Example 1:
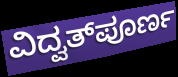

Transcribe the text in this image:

ವಿದ್ವತ್‌ಪೂರ್ಣ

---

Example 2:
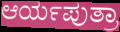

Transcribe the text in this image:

ಆರ್ಯಪುತ್ರಾ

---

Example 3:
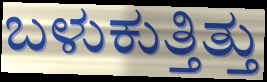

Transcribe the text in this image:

ಬಳುಕುತ್ತಿತ್ತು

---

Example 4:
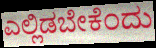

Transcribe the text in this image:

ಎಲ್ಲಿಡಬೇಕೆಂದು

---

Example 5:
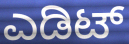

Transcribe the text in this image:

ಎಡಿಟ್